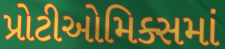
પ્રોટીઓમિક્સમાં